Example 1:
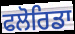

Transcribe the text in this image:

ਫਲੋਰਿਡਾ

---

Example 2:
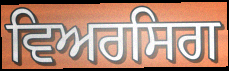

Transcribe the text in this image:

ਵਿਅਰਸਿਗ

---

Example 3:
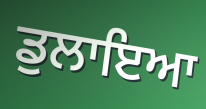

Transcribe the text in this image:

ਡੁਲਾਇਆ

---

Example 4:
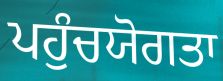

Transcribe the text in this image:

ਪਹੁੰਚਯੋਗਤਾ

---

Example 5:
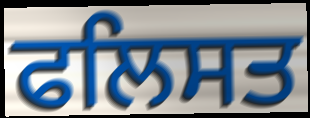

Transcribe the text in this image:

ਫਲਿਸਤ